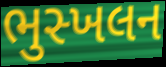
ભુસ્ખલન